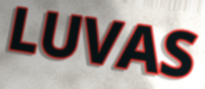
LUVAS